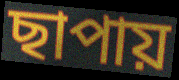
ছাপায়